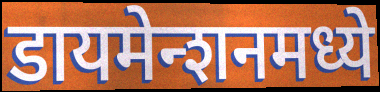
डायमेन्शनमध्ये